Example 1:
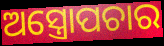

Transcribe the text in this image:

ଅସ୍ତ୍ରୋପଚାର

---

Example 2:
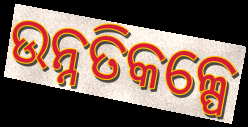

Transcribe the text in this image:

ଉନ୍ନତିକଳ୍ପେ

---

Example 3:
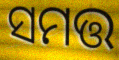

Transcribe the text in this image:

ସମତ୍ତ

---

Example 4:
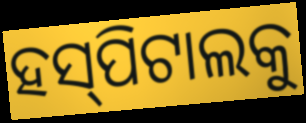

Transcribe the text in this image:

ହସ୍‌ପିଟାଲକୁ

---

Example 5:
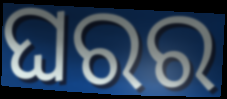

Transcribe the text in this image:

ଘରର